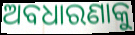
ଅବଧାରଣାକୁ